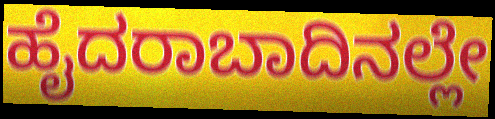
ಹೈದರಾಬಾದಿನಲ್ಲೇ